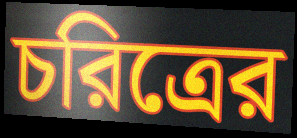
চরিত্রের